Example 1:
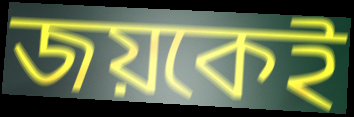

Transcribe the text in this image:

জয়কেই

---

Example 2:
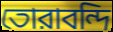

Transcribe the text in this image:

তোরাবন্দি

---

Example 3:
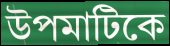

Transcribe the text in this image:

উপমাটিকে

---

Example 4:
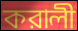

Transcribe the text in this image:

করালী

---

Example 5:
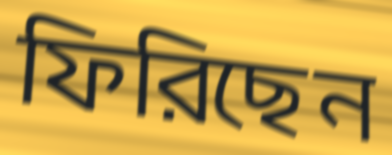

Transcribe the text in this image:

ফিরিছেন